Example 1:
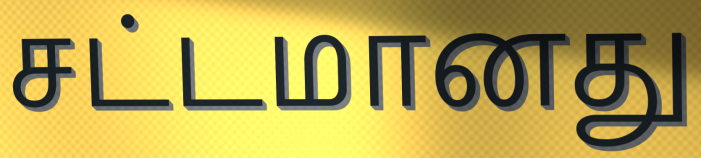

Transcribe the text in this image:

சட்டமானது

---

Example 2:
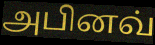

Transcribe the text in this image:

அபினவ்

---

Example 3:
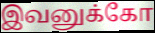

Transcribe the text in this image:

இவனுக்கோ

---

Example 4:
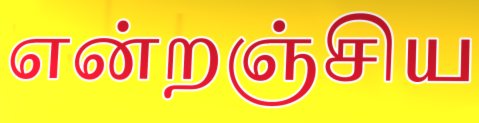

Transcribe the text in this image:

என்றஞ்சிய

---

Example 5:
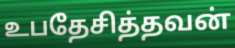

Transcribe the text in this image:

உபதேசித்தவன்